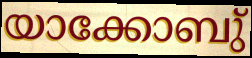
യാക്കോബു്